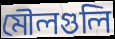
মৌলগুলি